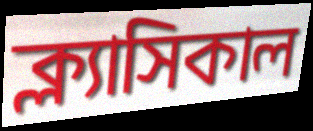
ক্ল্যাসিকাল